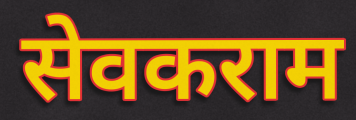
सेवकराम